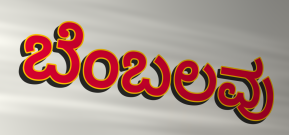
ಬೆಂಬಲವು